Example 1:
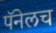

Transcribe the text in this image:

पॅनेलच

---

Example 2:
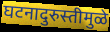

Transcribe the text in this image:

घटनादुरुस्तीमुळे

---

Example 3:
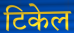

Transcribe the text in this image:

टिकेल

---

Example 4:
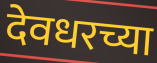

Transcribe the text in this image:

देवधरच्या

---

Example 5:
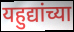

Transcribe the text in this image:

यहुद्यांच्या